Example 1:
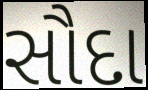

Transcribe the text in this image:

સૌદા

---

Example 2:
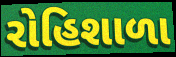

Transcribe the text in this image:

રોહિશાળા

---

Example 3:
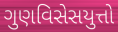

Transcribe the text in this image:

ગુણવિસેસયુત્તો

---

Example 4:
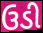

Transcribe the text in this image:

ઉડી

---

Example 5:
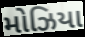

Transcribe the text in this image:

મોઝિયા